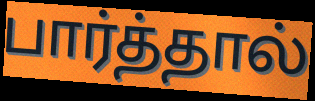
பார்த்தால்